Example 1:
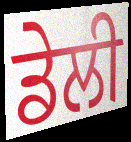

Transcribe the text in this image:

ਡੇਲੀ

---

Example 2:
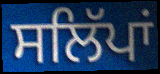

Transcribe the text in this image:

ਸਲਿੱਪਾਂ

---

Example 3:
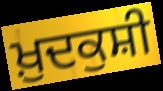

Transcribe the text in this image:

ਖ਼ੁਦਕੁਸ਼ੀ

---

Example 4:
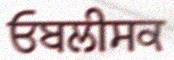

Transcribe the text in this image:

ਓਬਲੀਸਕ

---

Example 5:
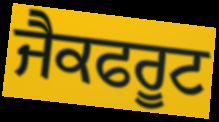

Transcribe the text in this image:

ਜੈਕਫਰੂਟ